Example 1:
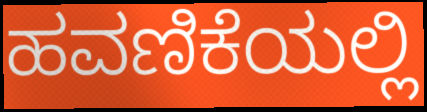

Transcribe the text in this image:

ಹವಣಿಕೆಯಲ್ಲಿ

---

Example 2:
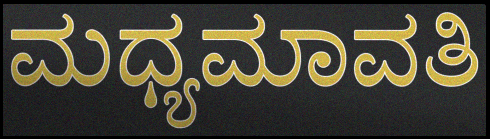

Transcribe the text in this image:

ಮಧ್ಯಮಾವತಿ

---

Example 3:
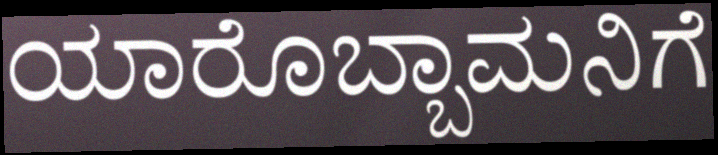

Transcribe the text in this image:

ಯಾರೊಬ್ಬಾಮನಿಗೆ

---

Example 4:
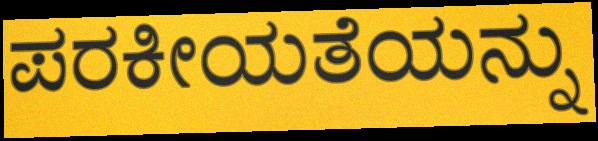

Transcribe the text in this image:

ಪರಕೀಯತೆಯನ್ನು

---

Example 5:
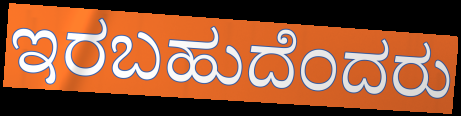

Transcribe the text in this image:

ಇರಬಹುದೆಂದರು